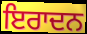
ਇਰਾਦਨ